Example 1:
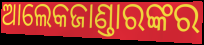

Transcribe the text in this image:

ଆଲେକଜାଣ୍ଡାରଙ୍କର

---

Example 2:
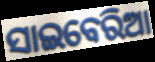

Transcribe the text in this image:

ସାଇବେରିଆ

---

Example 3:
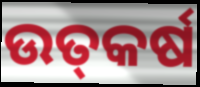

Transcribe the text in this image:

ଉତ୍‌କର୍ଷ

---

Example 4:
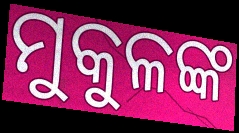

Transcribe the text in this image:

ମୁକୁଳଙ୍କ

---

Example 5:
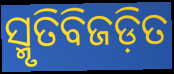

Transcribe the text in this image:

ସ୍ମୃତିବିଜଡ଼ିତ